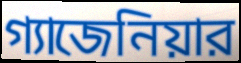
গ্যাজেনিয়ার